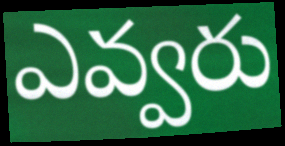
ఎవ్వరు